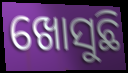
ଖୋସୁଛି